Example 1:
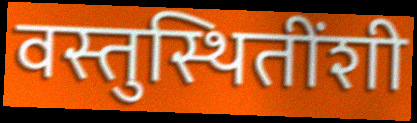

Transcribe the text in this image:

वस्तुस्थितींशी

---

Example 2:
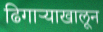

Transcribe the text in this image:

ढिगाऱ्याखालून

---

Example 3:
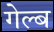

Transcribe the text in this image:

गेल्ब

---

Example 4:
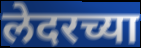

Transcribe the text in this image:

लेदरच्या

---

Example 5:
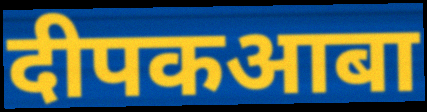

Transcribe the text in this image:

दीपकआबा